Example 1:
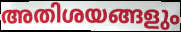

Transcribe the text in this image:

അതിശയങ്ങളും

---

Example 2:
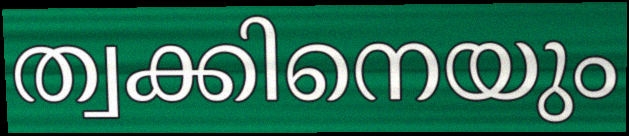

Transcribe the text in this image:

ത്വക്കിനെയും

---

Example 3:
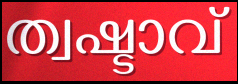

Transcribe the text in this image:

ത്വഷ്ടാവ്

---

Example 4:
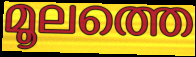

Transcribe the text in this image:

മൂലത്തെ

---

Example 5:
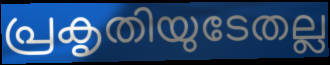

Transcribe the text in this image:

പ്രകൃതിയുടേതല്ല